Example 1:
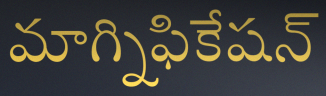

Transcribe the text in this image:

మాగ్నిఫికేషన్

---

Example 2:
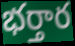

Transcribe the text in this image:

భర్తార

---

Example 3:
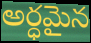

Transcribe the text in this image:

అర్ధమైన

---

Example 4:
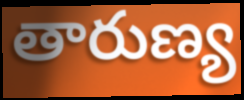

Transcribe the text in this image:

తారుణ్య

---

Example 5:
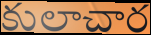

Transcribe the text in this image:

కులాచార